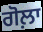
ਗੋਲ਼ਾ